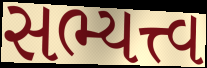
સભ્યત્ત્વ